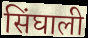
सिंघाली